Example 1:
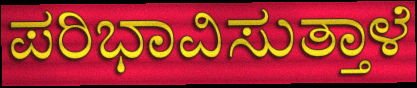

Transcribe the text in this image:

ಪರಿಭಾವಿಸುತ್ತಾಳೆ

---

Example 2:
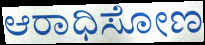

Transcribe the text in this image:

ಆರಾಧಿಸೋಣ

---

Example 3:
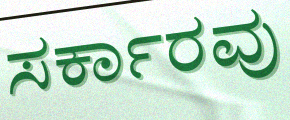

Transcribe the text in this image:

ಸರ್ಕಾರವು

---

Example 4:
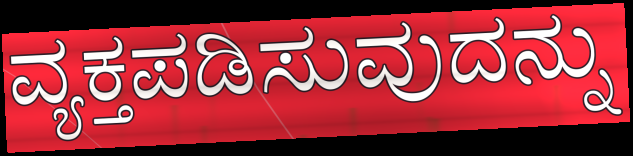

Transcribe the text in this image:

ವ್ಯಕ್ತಪಡಿಸುವುದನ್ನು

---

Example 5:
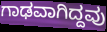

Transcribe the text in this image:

ಗಾಢವಾಗಿದ್ದವು